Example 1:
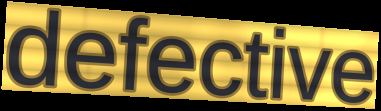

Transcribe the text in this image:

defective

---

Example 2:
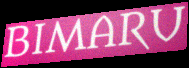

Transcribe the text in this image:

BIMARU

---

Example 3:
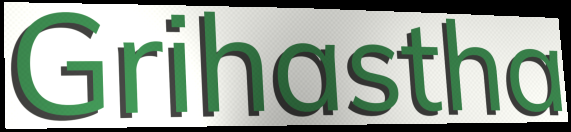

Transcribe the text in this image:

Grihastha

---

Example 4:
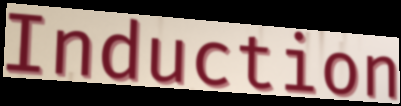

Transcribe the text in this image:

Induction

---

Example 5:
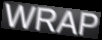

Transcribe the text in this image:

WRAP